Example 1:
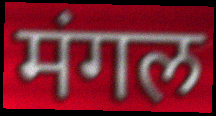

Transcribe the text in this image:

मंगल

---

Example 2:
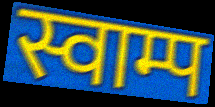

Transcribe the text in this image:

स्वाम्प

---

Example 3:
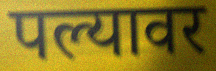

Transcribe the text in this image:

पल्यावर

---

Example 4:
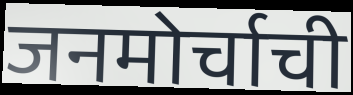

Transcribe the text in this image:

जनमोर्चाची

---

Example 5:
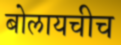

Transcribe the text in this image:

बोलायचीच